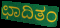
ಛಾದಿತಂ